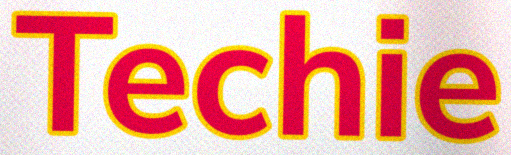
Techie